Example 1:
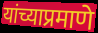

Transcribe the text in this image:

यांच्याप्रमाणे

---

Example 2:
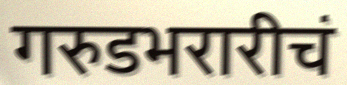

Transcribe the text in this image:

गरुडभरारीचं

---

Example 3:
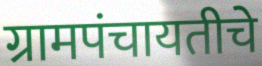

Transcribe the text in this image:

ग्रामपंचायतीचे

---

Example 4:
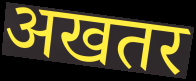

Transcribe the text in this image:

अखतर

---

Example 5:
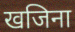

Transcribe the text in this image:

खजिना